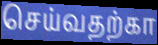
செய்வதற்கா